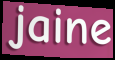
jaine